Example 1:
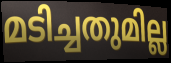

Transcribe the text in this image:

മടിച്ചതുമില്ല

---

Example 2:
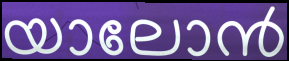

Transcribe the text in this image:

യാലോൻ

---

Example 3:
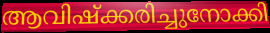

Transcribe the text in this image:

ആവിഷ്ക്കരിച്ചുനോക്കി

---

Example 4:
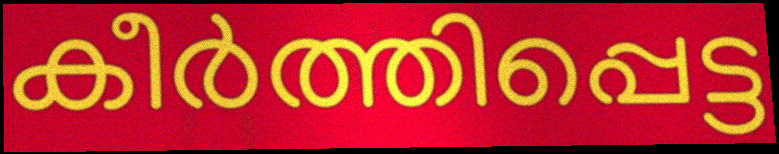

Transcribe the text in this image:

കീർത്തിപ്പെട്ട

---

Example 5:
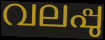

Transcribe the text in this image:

വലപ്പു